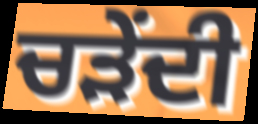
ਚੜੇਂਦੀ